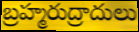
బ్రహ్మరుద్రాదులు